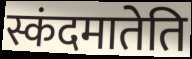
स्कंदमातेति